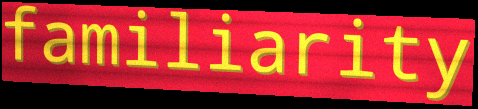
familiarity